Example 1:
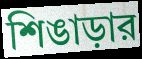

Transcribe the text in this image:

শিঙাড়ার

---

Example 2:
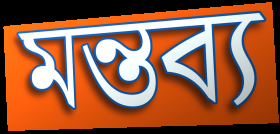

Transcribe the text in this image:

মন্তব্য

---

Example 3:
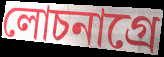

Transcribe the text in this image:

লোচনাগ্রে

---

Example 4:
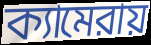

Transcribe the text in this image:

ক্যামেরায়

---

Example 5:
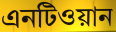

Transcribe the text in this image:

এনটিওয়ান